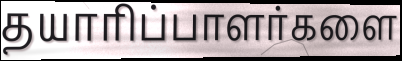
தயாரிப்பாளர்களை